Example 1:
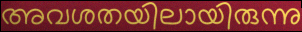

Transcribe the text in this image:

അവശതയിലായിരുന്നു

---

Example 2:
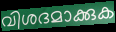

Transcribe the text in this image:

വിശദമാക്കുക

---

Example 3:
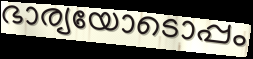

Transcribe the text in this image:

ഭാര്യയോടൊപ്പം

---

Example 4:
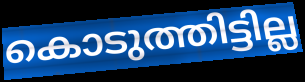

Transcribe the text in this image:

കൊടുത്തിട്ടില്ല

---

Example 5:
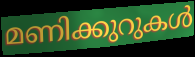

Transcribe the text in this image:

മണിക്കുറുകൾ